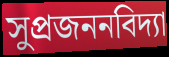
সুপ্রজননবিদ্যা